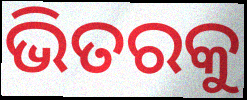
ଭିତରକୁ